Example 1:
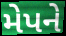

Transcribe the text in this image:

મેપને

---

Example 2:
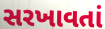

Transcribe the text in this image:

સરખાવતાં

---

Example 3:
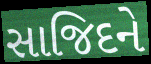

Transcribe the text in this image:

સાજિદને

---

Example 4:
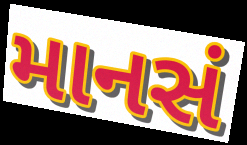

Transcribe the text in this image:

માનસં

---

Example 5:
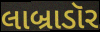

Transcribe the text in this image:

લાબ્રાડૉર